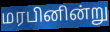
மரபினின்று